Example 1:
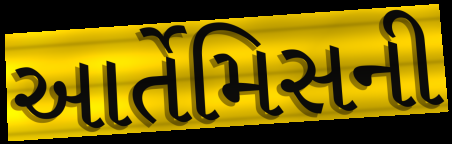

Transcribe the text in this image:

આર્તેમિસની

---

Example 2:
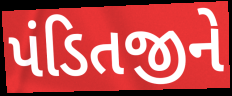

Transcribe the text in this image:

પંડિતજીને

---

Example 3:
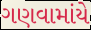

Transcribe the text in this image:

ગણવામાંયે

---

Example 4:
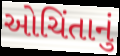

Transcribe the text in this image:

ઓચિંતાનું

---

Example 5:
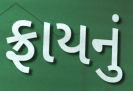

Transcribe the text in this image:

ફ્રાયનું